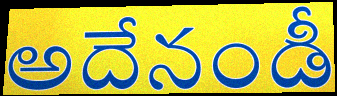
అదేనండీ